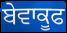
ਬੇਵਾਕੂਫ